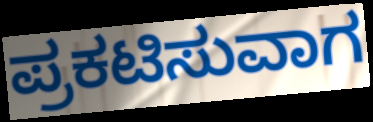
ಪ್ರಕಟಿಸುವಾಗ